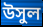
উসুল